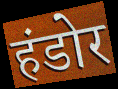
हंडोर